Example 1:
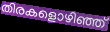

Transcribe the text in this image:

തിരകളൊഴിഞ്ഞ്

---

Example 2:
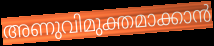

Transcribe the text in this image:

അണുവിമുക്തമാക്കാൻ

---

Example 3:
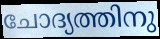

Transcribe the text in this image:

ചോദ്യത്തിനു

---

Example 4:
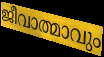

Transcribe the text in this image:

ജീവാത്മാവും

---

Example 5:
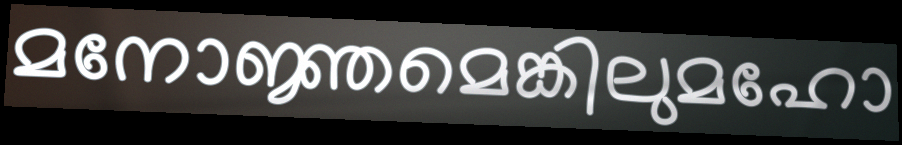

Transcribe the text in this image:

മനോജ്ഞമെങ്കിലുമഹോ